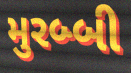
મુરબ્બી